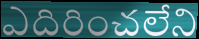
ఎదిరించలేని